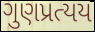
ગુણપ્રત્યય